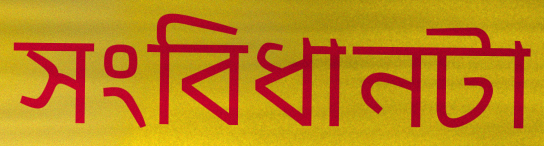
সংবিধানটা